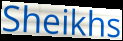
Sheikhs